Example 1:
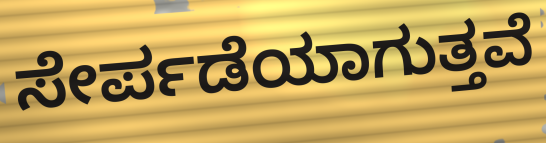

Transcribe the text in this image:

ಸೇರ್ಪಡೆಯಾಗುತ್ತವೆ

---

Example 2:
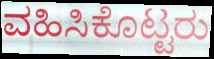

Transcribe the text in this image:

ವಹಿಸಿಕೊಟ್ಟರು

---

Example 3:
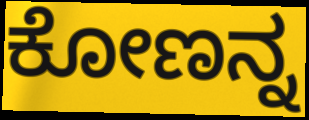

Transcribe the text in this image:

ಕೋಣನ್ನ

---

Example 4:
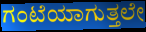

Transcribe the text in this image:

ಗಂಟೆಯಾಗುತ್ತಲೇ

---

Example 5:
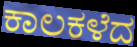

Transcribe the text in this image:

ಕಾಲಕಳೆದ